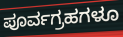
ಪೂರ್ವಗ್ರಹಗಳೂ